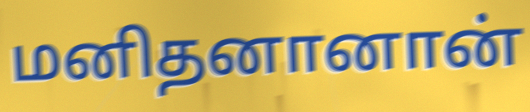
மனிதனானான்